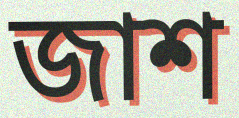
জাশ